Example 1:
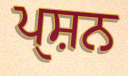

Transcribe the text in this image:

ਪੑਸ਼ਨ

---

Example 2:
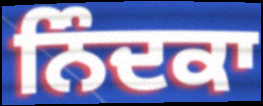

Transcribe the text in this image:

ਨਿੰਦਕਾ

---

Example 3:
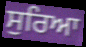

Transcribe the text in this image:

ਸੁਰਿਆ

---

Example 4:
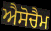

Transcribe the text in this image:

ਐਸੋਚੈਮ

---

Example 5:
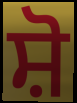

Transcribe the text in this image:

ਸ਼ੋ